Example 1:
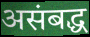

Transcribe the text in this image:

असंबद्ध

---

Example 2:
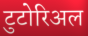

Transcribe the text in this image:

टुटोरिअल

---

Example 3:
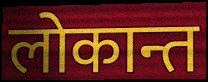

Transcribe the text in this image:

लोकान्त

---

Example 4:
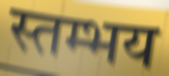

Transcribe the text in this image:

स्तम्भय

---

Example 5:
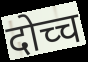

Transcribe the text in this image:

दोच्च